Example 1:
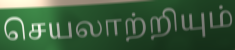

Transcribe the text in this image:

செயலாற்றியும்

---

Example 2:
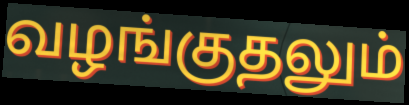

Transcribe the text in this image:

வழங்குதலும்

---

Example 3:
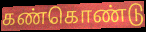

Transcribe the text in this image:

கண்கொண்டு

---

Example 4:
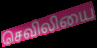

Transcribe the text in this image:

செவிலியை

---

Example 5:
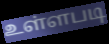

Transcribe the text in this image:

உள்ளபடி